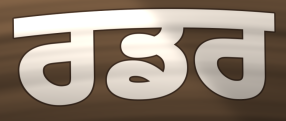
ਰਡਰ